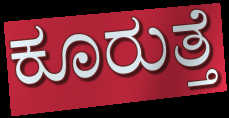
ಕೂರುತ್ತೆ